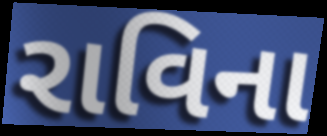
રાવિના